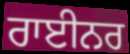
ਰਾਈਨਰ